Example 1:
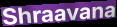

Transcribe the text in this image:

Shraavana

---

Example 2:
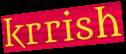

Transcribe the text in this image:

krrish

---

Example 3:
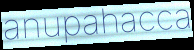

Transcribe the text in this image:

anupahacca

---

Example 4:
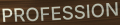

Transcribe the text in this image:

PROFESSION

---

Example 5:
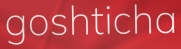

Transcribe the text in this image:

goshticha